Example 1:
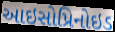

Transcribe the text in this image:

આઇસોપ્રિનોઇડ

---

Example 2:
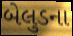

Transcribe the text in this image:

બેલુડના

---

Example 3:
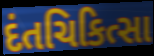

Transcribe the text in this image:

દંતચિકિત્સા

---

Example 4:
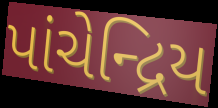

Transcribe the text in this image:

પાંચેન્દ્રિય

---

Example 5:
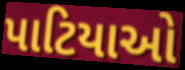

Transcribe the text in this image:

પાટિયાઓ